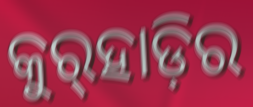
କୁର୍‍ହାଡ଼ିର